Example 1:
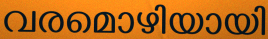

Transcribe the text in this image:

വരമൊഴിയായി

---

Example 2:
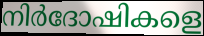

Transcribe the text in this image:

നിർദോഷികളെ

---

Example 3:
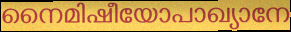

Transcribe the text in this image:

നൈമിഷീയോപാഖ്യാനേ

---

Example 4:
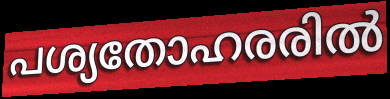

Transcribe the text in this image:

പശ്യതോഹരരിൽ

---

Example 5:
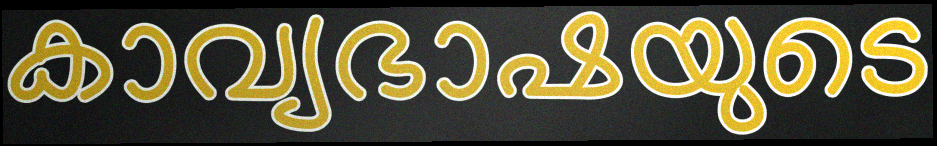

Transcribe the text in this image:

കാവ്യഭാഷയുടെ